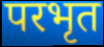
परभृत